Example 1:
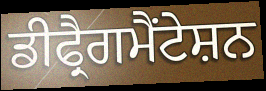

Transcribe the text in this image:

ਡੀਫ੍ਰੈਗਮੈਂਟੇਸ਼ਨ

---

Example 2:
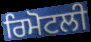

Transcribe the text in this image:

ਰਿਮੋਟਲੀ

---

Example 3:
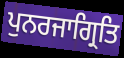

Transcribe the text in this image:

ਪੁਨਰਜਾਗ੍ਰਿਤਿ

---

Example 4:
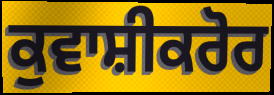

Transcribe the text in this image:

ਕੁਵਾਸ਼ੀਕਰੋਰ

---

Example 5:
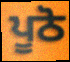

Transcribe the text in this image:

ਪੂਠੋ